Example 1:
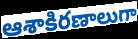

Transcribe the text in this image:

ఆశాకిరణాలుగా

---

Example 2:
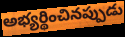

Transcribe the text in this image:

అభ్యర్థించినప్పుడు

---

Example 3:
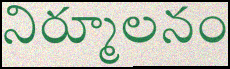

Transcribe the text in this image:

నిర్మూలనం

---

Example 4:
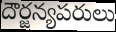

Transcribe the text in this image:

దౌర్జన్యపరులు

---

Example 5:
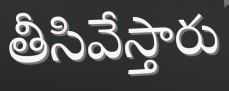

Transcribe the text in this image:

తీసివేస్తారు